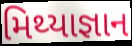
મિથ્યાજ્ઞાન